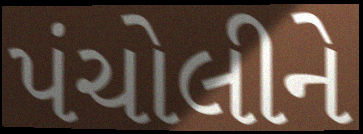
પંચોલીને